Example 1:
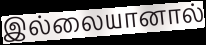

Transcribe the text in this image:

இல்லையானால்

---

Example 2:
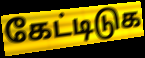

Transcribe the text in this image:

கேட்டிடுக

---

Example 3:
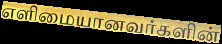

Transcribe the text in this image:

எளிமையானவர்களின்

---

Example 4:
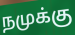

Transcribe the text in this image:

நமுக்கு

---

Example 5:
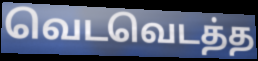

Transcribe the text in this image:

வெடவெடத்த